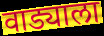
वाड्याला